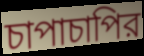
চাপাচাপির